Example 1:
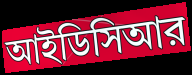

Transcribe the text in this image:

আইডিসিআর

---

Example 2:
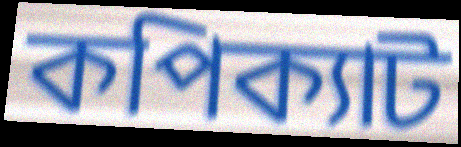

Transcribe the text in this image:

কপিক্যাট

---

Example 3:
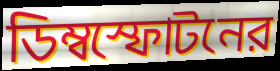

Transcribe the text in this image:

ডিম্বস্ফোটনের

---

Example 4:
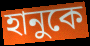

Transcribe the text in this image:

হানুকে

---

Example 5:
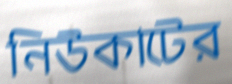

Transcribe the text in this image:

নিউকাটের